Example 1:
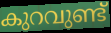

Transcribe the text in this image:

കുറവുണ്ട്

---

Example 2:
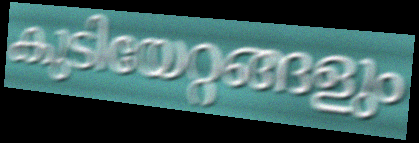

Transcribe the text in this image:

കുടിയേറ്റങ്ങളും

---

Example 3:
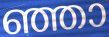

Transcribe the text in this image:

ഞ്ഞാ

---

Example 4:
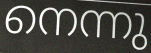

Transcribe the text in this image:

നെന്നു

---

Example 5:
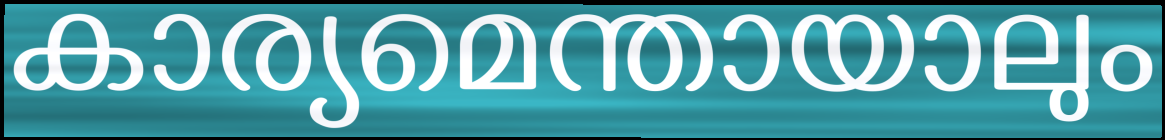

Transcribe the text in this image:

കാര്യമെന്തായാലും